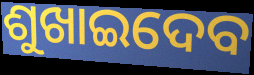
ଶୁଖାଇଦେବ